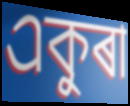
একুৰা